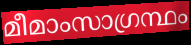
മീമാംസാഗ്രന്ഥം